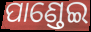
ପାଣ୍ଡେଇ